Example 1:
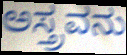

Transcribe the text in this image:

ಅಸ್ತ್ರವನು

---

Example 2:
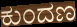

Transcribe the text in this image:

ಕುಂದಣ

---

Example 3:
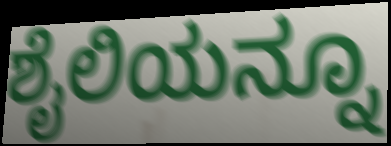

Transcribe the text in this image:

ಶೈಲಿಯನ್ನೂ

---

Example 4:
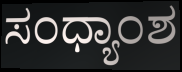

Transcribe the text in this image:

ಸಂಧ್ಯಾಂಶ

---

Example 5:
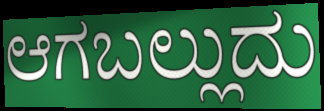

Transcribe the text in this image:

ಆಗಬಲ್ಲುದು